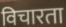
विचारता